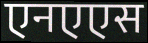
एनएएस